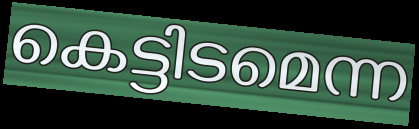
കെട്ടിടമെന്ന